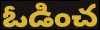
ఓడించ